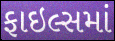
ફાઇલ્સમાં